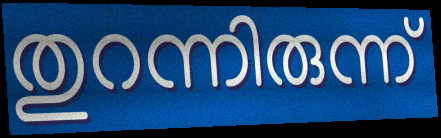
തുറന്നിരുന്ന്